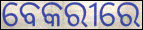
ବେକରୀରେ